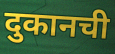
दुकानची